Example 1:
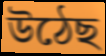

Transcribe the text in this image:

উঠেছ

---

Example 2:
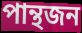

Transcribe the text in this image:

পান্থজন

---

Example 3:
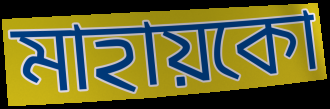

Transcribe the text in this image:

মাহায়কো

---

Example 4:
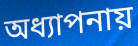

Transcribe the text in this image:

অধ্যাপনায়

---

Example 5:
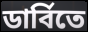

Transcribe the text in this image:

ডার্বিতে